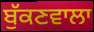
ਬੁੱਕਣਵਾਲਾ